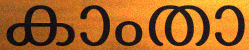
കാംതാ